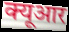
क्‍यूआर